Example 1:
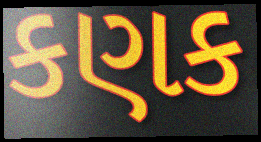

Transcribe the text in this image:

કણક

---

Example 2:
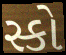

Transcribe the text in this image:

સ્કો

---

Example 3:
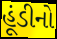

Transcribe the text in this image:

હૂંડીનો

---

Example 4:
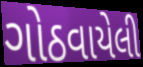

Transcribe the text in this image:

ગોઠવાયેલી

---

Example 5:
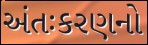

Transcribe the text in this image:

અંતઃકરણનો